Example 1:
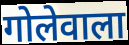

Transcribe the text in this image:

गोलेवाला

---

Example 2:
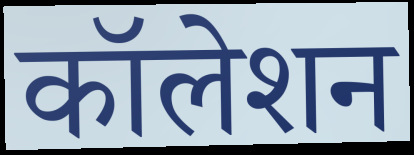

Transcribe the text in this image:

कॉलेशन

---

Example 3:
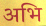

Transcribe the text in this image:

अभि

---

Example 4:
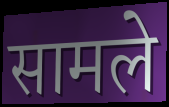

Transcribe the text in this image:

सामले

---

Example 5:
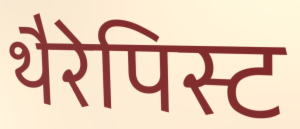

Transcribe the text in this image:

थैरेपिस्ट